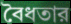
বৈধতার